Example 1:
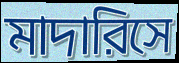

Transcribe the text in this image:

মাদারিসে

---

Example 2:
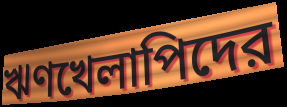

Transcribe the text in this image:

ঋণখেলাপিদের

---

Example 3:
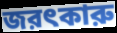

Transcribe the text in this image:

জরৎকারু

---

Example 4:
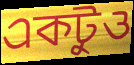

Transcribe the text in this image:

একটুও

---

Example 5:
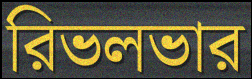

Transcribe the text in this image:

রিভলভার